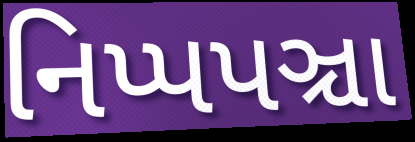
નિપ્પપઞ્ચા